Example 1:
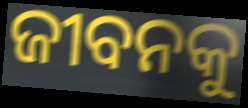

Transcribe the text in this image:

ଜୀବନକୁ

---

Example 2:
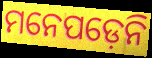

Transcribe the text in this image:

ମନେପଡ଼େନି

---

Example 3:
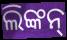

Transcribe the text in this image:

ଲିଙ୍କନ୍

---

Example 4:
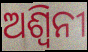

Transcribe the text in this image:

ଅଶ୍ୱିନୀ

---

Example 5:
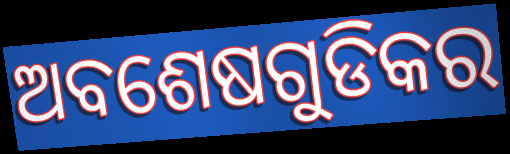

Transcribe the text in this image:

ଅବଶେଷଗୁଡିକର